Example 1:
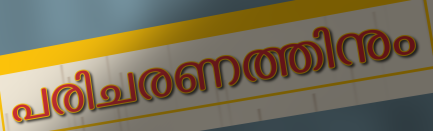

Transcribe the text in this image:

പരിചരണത്തിനും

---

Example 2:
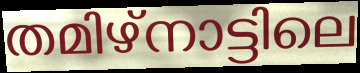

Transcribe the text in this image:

തമിഴ്നാട്ടിലെ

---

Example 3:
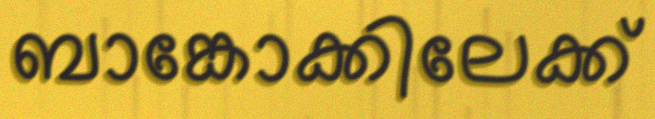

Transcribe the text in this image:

ബാങ്കോക്കിലേക്ക്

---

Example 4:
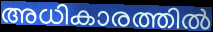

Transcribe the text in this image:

അധികാരത്തിൽ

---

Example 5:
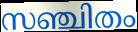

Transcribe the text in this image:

സഞ്ചിതം